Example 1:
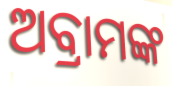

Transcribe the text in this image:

ଅବ୍ରାମଙ୍କ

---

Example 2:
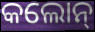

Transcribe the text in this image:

କଲୋନ୍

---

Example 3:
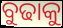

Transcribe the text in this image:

ବୁଢାକୁ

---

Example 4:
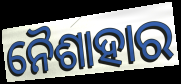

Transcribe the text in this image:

ନୈଶାହାର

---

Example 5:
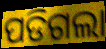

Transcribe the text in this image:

ପଡିଗଲା